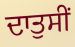
ਦਾਤੁਸੀਂ